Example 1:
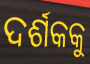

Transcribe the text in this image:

ଦର୍ଶକକୁ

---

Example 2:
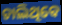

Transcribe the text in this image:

ଚାଲିଥିବେ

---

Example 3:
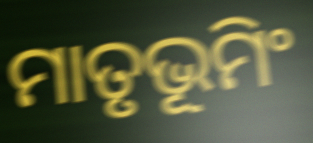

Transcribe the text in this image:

ମାତୃଭୂମିଂ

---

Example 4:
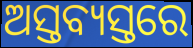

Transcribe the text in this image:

ଅସ୍ତବ୍ୟସ୍ତରେ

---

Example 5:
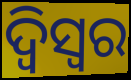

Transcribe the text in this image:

ଦ୍ଵିସ୍ଵର